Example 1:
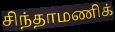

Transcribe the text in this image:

சிந்தாமணிக்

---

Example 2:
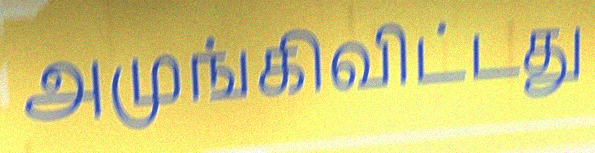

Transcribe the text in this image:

அமுங்கிவிட்டது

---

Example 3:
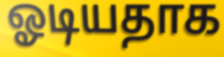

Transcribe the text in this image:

ஓடியதாக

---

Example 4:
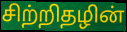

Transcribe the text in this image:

சிற்றிதழின்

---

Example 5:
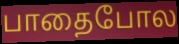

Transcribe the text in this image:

பாதைபோல